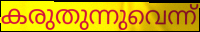
കരുതുന്നുവെന്ന്